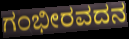
ಗಂಭೀರವದನ